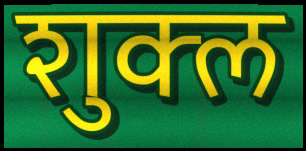
शुक्‍ल